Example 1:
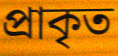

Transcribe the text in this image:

প্ৰাকৃত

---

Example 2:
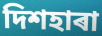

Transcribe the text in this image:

দিশহাৰা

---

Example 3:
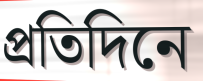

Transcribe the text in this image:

প্ৰতিদিনে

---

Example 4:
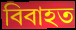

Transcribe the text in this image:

বিবাহত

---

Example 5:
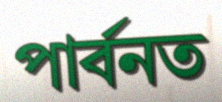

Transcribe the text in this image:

পাৰ্বনত